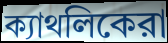
ক্যাথলিকেরা